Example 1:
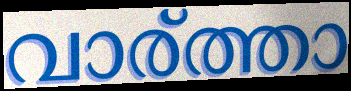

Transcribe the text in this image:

വാര്ത്താ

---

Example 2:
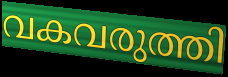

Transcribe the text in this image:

വകവരുത്തി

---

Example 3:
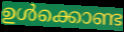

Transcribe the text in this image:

ഉൾക്കൊണ്ട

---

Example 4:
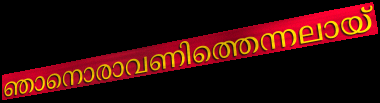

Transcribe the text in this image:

ഞാനൊരാവണിത്തെന്നലായ്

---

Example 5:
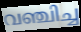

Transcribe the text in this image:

വഞ്ചിച്ച